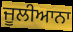
ਜੂਲੀਆਨਾ